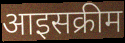
आइसक्रीम